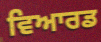
ਵਿਆਰਡ